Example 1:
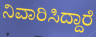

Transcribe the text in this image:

ನಿವಾರಿಸಿದ್ದಾರೆ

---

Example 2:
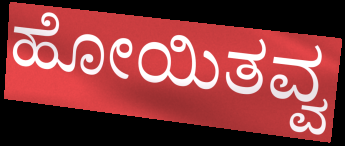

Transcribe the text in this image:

ಹೋಯಿತವ್ವ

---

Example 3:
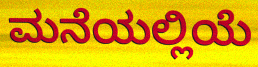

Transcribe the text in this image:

ಮನೆಯಲ್ಲಿಯೆ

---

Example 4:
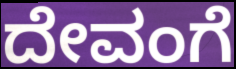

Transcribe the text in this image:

ದೇವಂಗೆ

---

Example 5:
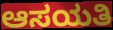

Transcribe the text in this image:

ಆಸಯತಿ